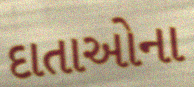
દાતાઓના